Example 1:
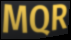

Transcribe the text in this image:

MQR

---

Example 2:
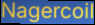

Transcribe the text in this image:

Nagercoil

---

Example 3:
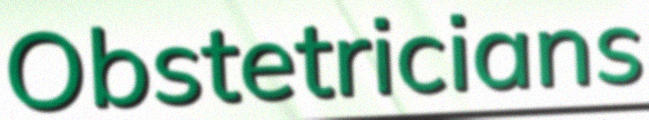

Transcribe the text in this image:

Obstetricians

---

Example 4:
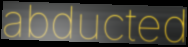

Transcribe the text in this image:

abducted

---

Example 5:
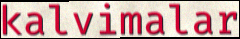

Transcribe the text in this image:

kalvimalar